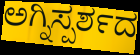
ಅಗ್ನಿಸ್ಪರ್ಶದ